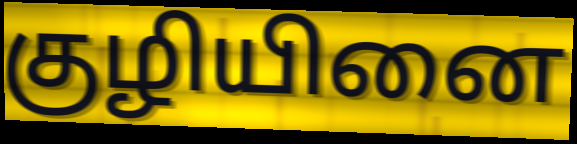
குழியினை